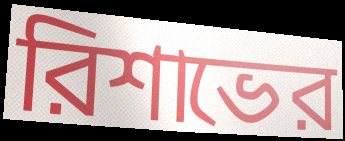
রিশাভের